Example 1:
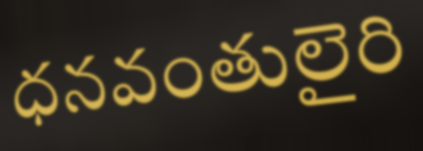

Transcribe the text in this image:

ధనవంతులైరి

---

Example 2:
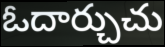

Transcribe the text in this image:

ఓదార్చుచు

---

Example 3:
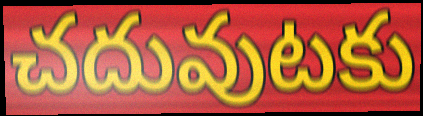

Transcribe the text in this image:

చదువుటకు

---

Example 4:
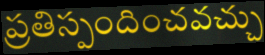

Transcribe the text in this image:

ప్రతిస్పందించవచ్చు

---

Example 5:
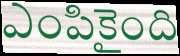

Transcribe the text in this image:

ఎంపికైంది